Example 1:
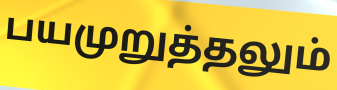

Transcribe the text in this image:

பயமுறுத்தலும்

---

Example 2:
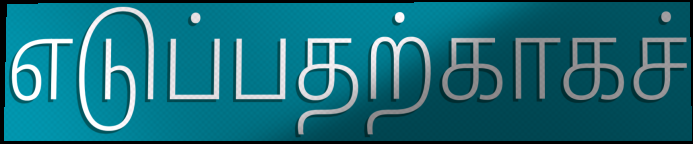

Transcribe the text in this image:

எடுப்பதற்காகச்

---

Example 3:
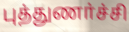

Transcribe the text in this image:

புத்துணர்ச்சி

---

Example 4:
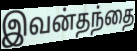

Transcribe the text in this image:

இவன்தந்தை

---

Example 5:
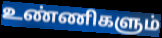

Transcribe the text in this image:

உண்ணிகளும்